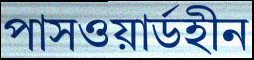
পাসওয়ার্ডহীন